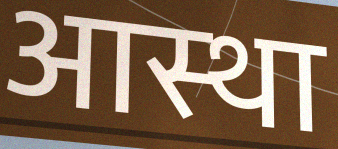
आस्था